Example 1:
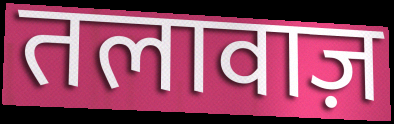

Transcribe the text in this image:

तलावाज़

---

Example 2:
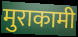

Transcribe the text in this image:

मुराकामी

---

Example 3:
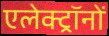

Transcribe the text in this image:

एलेक्ट्रॉनों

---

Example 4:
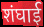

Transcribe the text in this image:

शंघाई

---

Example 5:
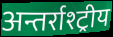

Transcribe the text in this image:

अन्तर्राश्ट्रीय